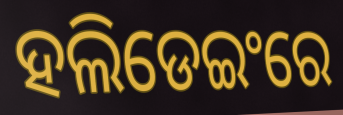
ହଲିଡେଇଂରେ